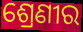
ଶ୍ରେଣୀର